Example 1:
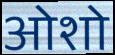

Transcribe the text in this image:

ओशो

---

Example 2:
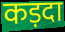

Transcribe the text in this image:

कड़दा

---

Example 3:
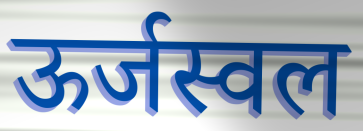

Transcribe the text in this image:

ऊर्जस्वल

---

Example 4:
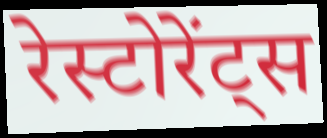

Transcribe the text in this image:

रेस्‍टोरेंट्स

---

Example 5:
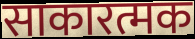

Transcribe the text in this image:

साकारत्मक